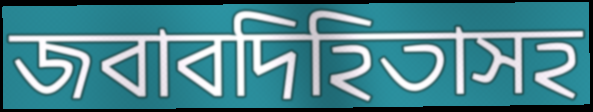
জবাবদিহিতাসহ